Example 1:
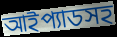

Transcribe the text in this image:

আইপ্যাডসহ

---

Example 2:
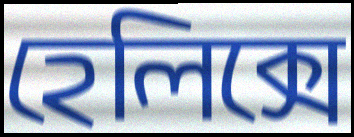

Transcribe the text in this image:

হেলিক্সে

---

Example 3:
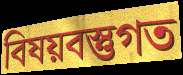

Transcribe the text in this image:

বিষয়বস্তুগত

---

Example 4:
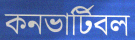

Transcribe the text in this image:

কনভার্টিবল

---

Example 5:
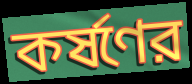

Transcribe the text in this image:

কর্ষণের